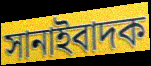
সানাইবাদক